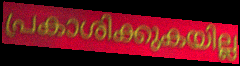
പ്രകാശിക്കുകയില്ല